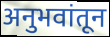
अनुभवांतून